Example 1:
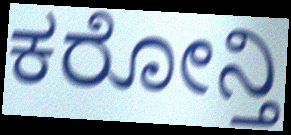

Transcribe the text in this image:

ಕರೋನ್ತಿ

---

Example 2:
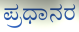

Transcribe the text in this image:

ಪ್ರಧಾನರ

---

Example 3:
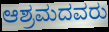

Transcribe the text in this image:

ಆಶ್ರಮದವರು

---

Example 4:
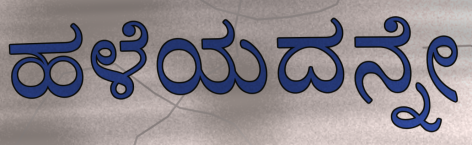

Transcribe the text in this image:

ಹಳೆಯದನ್ನೇ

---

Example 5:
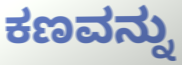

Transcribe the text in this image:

ಕಣವನ್ನು